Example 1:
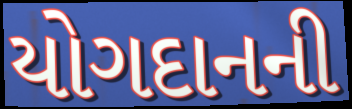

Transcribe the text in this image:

યોગદાનની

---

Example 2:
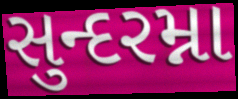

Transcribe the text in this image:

સુન્દરમ્ના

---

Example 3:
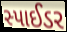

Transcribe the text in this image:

સ્પાઈડર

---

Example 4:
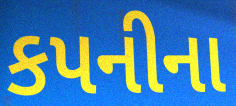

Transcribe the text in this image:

કપનીના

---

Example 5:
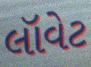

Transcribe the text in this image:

લૉવેટ